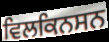
ਵਿਲਕਿਨਸਨ